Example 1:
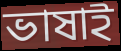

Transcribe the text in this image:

ভাষাই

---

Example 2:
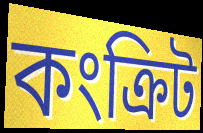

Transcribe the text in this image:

কংক্ৰিট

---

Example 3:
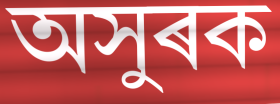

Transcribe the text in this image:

অসুৰক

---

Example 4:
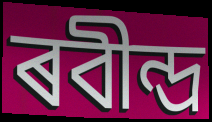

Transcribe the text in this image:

ৰবীন্দ্ৰ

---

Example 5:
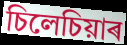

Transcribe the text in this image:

চিলেচিয়াৰ